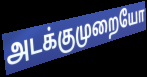
அடக்குமுறையோ